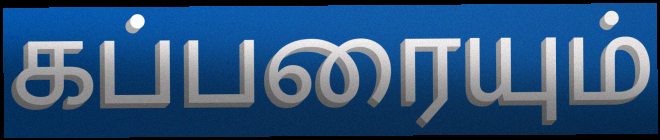
கப்பரையும்